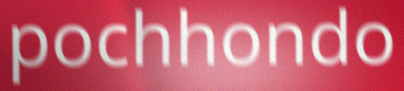
pochhondo